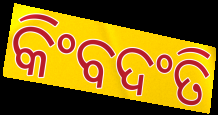
କିଂବଦଂତି